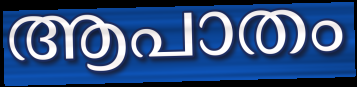
ആപാതം